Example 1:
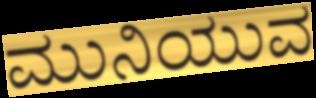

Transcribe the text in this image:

ಮುನಿಯುವ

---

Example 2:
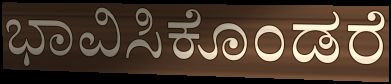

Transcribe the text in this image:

ಭಾವಿಸಿಕೊಂಡರೆ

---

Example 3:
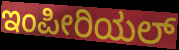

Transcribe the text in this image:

ಇಂಪೀರಿಯಲ್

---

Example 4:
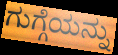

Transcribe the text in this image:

ಗುಗ್ಗೆಯನ್ನು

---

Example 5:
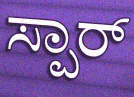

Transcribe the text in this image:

ಸ್ಪಾರ್